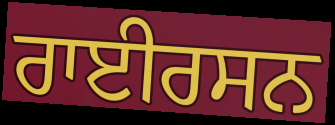
ਰਾਈਰਸਨ